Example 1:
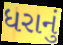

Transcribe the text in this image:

ધરાનું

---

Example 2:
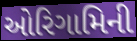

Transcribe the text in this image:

ઓરિગામિની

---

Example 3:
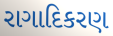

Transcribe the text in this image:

રાગાદિકરણ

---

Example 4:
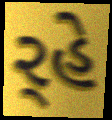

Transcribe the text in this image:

ર્‍હે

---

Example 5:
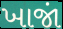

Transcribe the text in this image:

ખાજાં